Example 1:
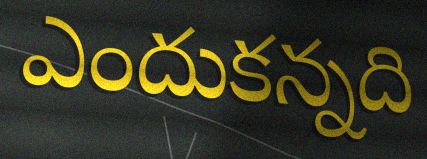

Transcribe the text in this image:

ఎందుకన్నది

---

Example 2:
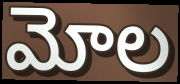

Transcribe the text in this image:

మోల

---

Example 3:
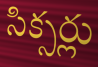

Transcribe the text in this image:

సిక్సర్లు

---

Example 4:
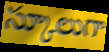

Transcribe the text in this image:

స్కూలుగా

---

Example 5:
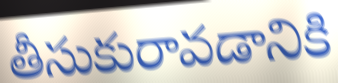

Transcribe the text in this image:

తీసుకురావడానికి